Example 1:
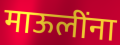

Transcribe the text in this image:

माऊलींना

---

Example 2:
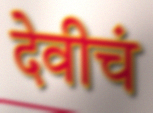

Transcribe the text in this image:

देवीचं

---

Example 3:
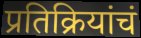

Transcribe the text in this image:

प्रतिक्रियांचं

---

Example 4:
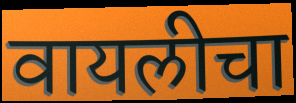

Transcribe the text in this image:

वायलीचा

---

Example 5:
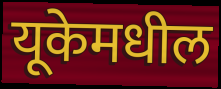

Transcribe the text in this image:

यूकेमधील